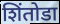
शिंतोडा